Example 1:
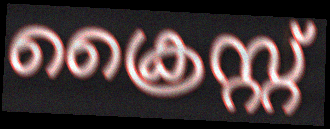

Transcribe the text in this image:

ക്രൈസ്റ്റ്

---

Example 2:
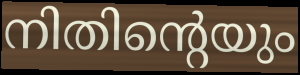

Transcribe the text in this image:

നിതിന്റെയും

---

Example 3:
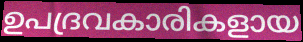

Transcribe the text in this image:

ഉപദ്രവകാരികളായ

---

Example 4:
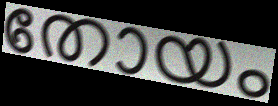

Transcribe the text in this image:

തോയം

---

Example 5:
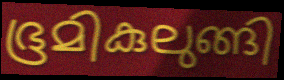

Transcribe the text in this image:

ഭൂമികുലുങ്ങി